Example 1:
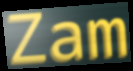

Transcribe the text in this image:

Zam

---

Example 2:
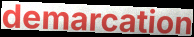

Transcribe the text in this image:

demarcation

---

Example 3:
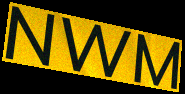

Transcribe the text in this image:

NWM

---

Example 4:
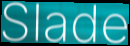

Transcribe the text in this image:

Slade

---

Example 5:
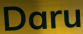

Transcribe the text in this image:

Daru